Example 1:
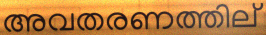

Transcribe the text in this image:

അവതരണത്തില്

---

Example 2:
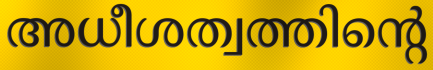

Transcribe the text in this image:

അധീശത്വത്തിന്റെ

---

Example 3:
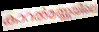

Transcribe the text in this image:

കാറൽമണ്ണയിലെ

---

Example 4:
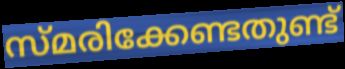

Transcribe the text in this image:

സ്മരിക്കേണ്ടതുണ്ട്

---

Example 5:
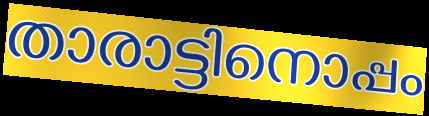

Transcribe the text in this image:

താരാട്ടിനൊപ്പം